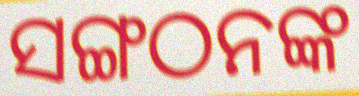
ସଙ୍ଗଠନଙ୍କ